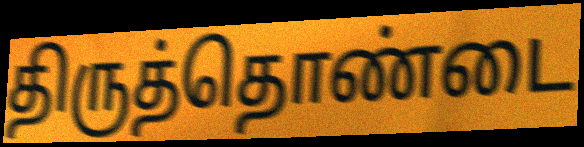
திருத்தொண்டை